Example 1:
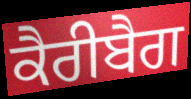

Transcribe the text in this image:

ਕੈਰੀਬੈਗ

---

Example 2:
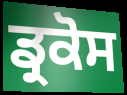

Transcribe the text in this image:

ਡ੍ਰਕੋਸ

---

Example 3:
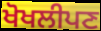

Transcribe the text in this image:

ਖੋਖਲੀਪਣ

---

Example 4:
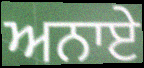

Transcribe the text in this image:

ਅਨਾਏ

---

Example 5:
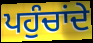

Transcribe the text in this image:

ਪਹੁੰਚਾਂਦੇ